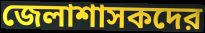
জেলাশাসকদের